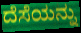
ದೆಸೆಯನ್ನು